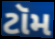
ટૉમ